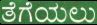
ತೆಗೆಯಲು